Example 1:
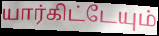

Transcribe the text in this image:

யார்கிட்டேயும்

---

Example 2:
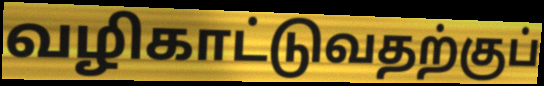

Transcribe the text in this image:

வழிகாட்டுவதற்குப்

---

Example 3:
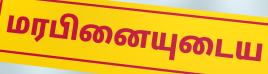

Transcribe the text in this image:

மரபினையுடைய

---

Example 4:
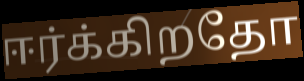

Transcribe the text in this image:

ஈர்க்கிறதோ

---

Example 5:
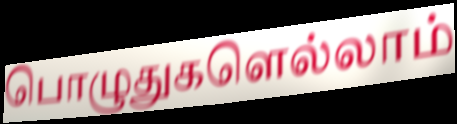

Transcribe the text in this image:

பொழுதுகளெல்லாம்